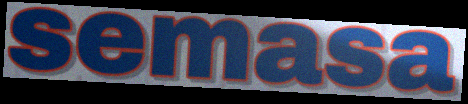
semasa